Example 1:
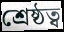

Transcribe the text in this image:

শ্রেষ্ঠত্ব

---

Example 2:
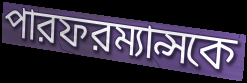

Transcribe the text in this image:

পারফরম্যান্সকে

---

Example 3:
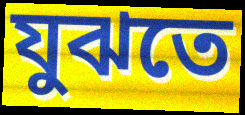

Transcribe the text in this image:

যুঝতে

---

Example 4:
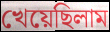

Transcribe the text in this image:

খেয়েছিলাম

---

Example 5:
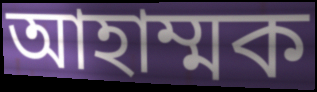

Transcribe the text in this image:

আহাম্মক